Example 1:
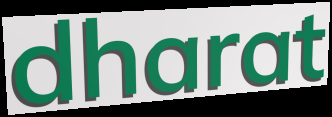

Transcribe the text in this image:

dharat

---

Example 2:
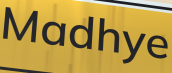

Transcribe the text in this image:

Madhye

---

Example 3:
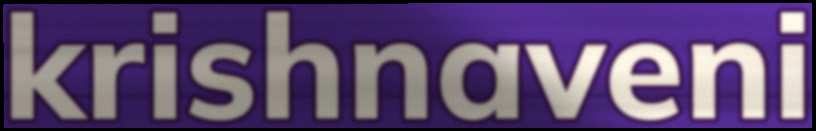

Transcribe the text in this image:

krishnaveni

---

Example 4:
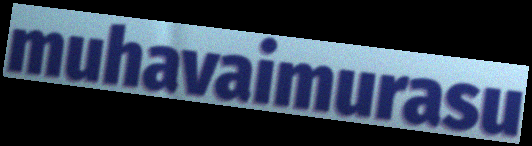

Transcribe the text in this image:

muhavaimurasu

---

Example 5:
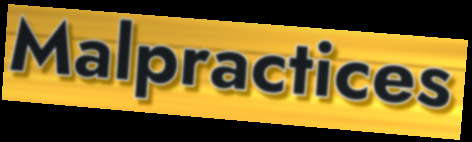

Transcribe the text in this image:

Malpractices